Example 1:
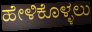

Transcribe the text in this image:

ಹೇಳಿಕೊಳ್ಳಲು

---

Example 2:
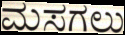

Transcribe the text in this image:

ಮಸಗಲು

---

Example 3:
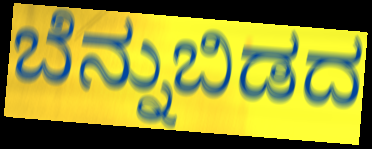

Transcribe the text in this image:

ಬೆನ್ನುಬಿಡದ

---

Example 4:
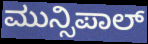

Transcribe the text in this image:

ಮುನ್ಸಿಪಾಲ್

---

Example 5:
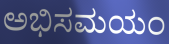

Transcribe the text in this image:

ಅಭಿಸಮಯಂ